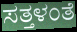
ಸತ್ತಳಂತೆ